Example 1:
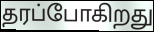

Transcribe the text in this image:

தரப்போகிறது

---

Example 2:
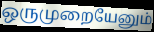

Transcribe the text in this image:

ஒருமுறையேனும்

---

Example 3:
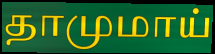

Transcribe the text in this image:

தாமுமாய்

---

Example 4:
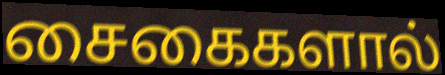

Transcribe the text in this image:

சைகைகளால்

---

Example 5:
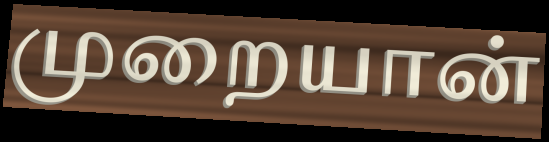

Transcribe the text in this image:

முறையான்